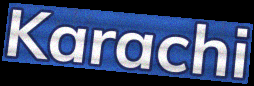
Karachi